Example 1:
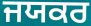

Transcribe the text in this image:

ਜਯਕਰ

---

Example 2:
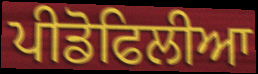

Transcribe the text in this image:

ਪੀਡੋਫਿਲੀਆ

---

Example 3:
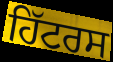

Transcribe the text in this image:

ਹਿੱਟਰਸ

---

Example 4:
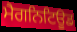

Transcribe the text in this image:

ਮੈਗਨਿਟਿਊਡ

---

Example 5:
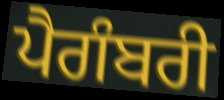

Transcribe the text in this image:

ਪੈਗੰਬਰੀ